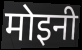
मोइनी